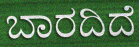
ಬಾರದಿದೆ